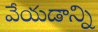
వేయడాన్ని